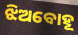
ଝିଅବୋହୂ